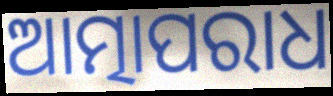
ଆତ୍ମାପରାଧ